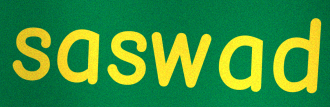
saswad